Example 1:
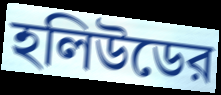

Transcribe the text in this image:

হলিউডের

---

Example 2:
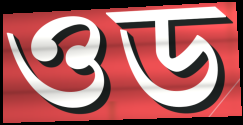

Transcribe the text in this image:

ওড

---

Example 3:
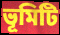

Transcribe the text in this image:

ভূমিটি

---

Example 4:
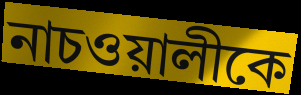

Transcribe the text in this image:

নাচওয়ালীকে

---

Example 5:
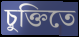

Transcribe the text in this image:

চুক্তিতে